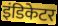
इंडिकेटर